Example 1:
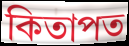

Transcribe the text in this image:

কিতাপত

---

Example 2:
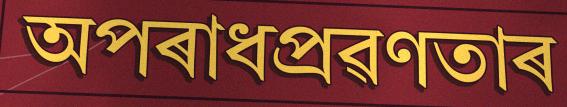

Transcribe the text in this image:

অপৰাধপ্ৰৱণতাৰ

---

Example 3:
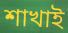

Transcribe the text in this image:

শাখাই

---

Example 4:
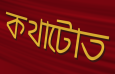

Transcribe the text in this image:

কথাটোত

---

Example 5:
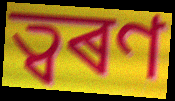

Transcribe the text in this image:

ত্বৰণ